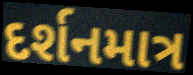
દર્શનમાત્ર